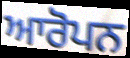
ਆਰੋਪਨ